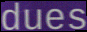
dues